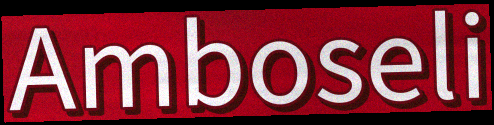
Amboseli